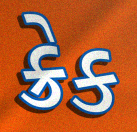
ક્રેક